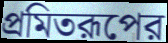
প্রমিতরূপের